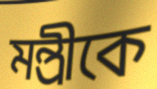
মন্ত্রীকে